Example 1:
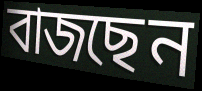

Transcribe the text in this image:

বাজছেন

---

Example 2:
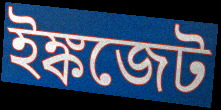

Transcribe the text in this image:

ইঙ্কজেট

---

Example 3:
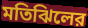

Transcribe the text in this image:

মতিঝিলের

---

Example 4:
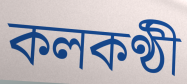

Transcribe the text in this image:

কলকণ্ঠী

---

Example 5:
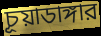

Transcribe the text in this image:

চূয়াডাঙ্গার